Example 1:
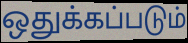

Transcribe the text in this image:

ஒதுக்கப்படும்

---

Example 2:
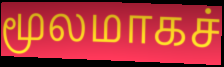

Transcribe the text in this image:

மூலமாகச்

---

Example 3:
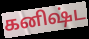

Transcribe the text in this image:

கனிஷ்ட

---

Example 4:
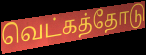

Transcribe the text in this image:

வெட்கத்தோடு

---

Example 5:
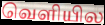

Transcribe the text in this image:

வெளியில